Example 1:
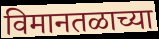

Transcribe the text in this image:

विमानतळाच्या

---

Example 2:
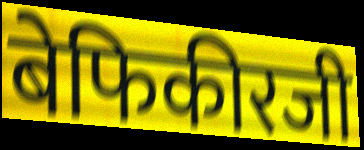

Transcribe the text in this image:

बेफिकीरजी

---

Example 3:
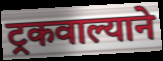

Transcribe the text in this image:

ट्रकवाल्याने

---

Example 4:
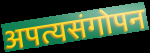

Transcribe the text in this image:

अपत्यसंगोपन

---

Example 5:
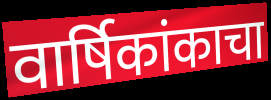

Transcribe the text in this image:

वार्षिकांकाचा